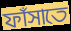
ফাঁসাতে